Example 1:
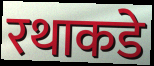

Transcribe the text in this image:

रथाकडे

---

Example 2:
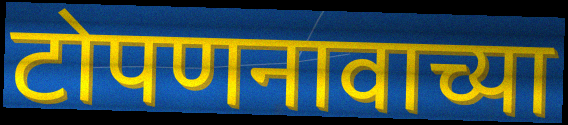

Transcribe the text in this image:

टोपणनावाच्या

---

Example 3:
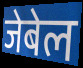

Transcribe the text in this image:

जेबेल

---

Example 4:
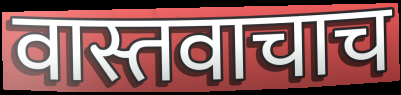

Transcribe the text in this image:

वास्तवाचाच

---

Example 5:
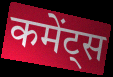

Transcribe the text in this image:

कमेंट्स